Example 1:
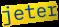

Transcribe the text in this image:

jeter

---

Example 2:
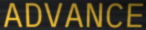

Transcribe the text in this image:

ADVANCE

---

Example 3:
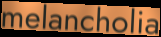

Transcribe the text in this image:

melancholia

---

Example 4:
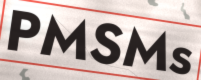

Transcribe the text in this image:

PMSMs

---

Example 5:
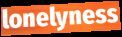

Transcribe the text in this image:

lonelyness